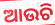
ଆଉଚି